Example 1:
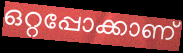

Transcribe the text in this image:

ഒറ്റപ്പോക്കാണ്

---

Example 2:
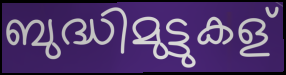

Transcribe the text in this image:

ബുദ്ധിമുട്ടുകള്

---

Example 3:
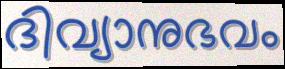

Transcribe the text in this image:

ദിവ്യാനുഭവം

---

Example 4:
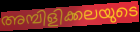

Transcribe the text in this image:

അമ്പിളിക്കലയുടെ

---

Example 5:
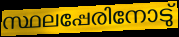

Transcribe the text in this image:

സ്ഥലപ്പേരിനോടു്